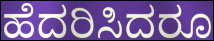
ಹೆದರಿಸಿದರೂ